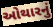
ઓથારનું